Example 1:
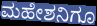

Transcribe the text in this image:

ಮಹೇಶನಿಗೂ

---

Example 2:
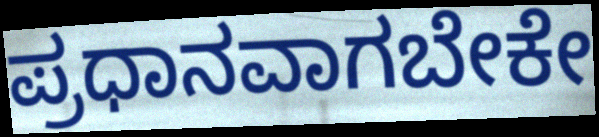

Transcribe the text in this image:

ಪ್ರಧಾನವಾಗಬೇಕೇ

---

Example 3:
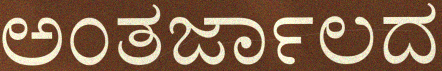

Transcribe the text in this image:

ಅಂತರ್ಜಾಲದ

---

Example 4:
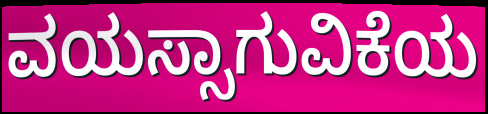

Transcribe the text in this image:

ವಯಸ್ಸಾಗುವಿಕೆಯ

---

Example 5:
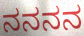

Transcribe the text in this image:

ನನನನ